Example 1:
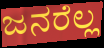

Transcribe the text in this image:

ಜನರೆಲ್ಲ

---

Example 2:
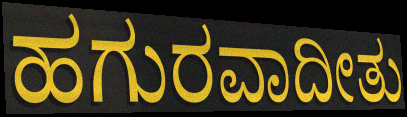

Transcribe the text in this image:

ಹಗುರವಾದೀತು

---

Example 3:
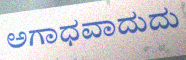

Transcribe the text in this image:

ಅಗಾಧವಾದುದು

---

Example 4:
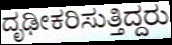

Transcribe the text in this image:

ದೃಢೀಕರಿಸುತ್ತಿದ್ದರು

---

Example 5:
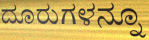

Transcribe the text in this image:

ದೂರುಗಳನ್ನೂ